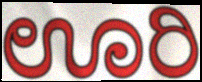
ಊರಿ